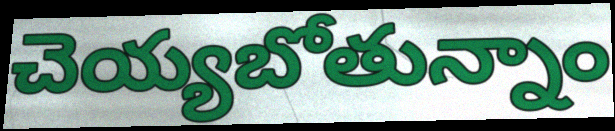
చెయ్యబోతున్నాం